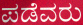
ಪಡೆವರು